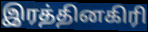
இரத்தினகிரி